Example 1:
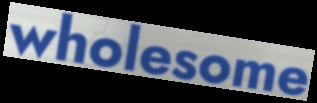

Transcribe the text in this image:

wholesome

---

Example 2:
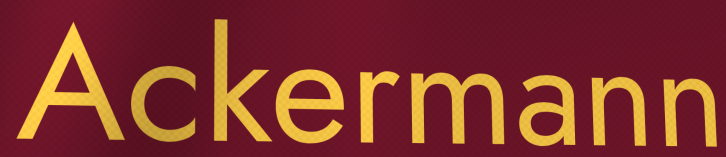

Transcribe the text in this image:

Ackermann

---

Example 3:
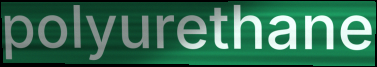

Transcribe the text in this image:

polyurethane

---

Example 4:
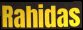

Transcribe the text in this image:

Rahidas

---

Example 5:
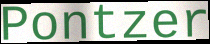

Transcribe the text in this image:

Pontzer